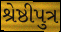
શ્રેષ્ઠીપુત્ર